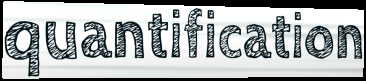
quantification